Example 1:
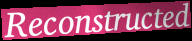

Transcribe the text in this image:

Reconstructed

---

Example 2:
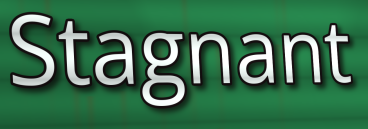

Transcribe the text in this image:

Stagnant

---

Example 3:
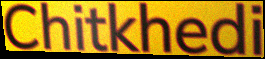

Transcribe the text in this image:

Chitkhedi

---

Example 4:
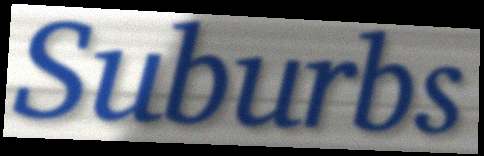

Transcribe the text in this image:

Suburbs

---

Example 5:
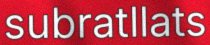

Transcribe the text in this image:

subratllats